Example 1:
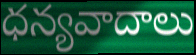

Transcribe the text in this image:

ధన్యవాదాలు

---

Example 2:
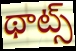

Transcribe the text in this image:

థాట్స్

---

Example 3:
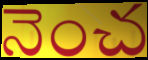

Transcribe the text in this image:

నెంచ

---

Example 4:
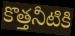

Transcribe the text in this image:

కొత్తనీటికి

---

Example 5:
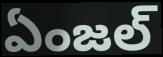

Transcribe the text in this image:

ఏంజల్